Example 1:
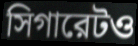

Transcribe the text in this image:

সিগারেটও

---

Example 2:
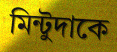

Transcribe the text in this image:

মিন্টুদাকে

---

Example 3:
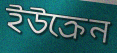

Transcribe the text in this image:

ইউক্রেন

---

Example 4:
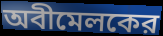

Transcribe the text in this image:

অবীমেলকের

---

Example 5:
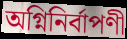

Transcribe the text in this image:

অগ্নিনির্বাপণী